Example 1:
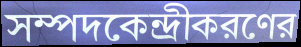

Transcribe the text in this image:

সম্পদকেন্দ্রীকরণের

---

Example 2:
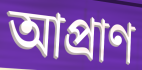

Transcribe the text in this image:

আপ্রাণ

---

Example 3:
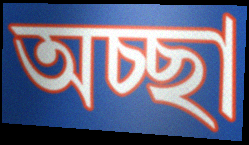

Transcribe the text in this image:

অচ্ছা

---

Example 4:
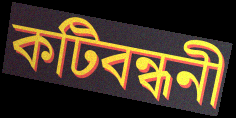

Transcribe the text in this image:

কটিবন্ধনী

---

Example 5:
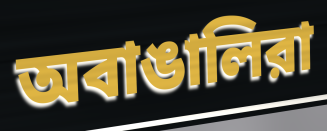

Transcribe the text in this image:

অবাঙালিরা